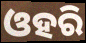
ଓହରି